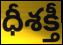
ధీశక్తీ